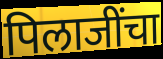
पिलाजींचा